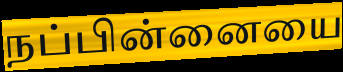
நப்பின்னையை